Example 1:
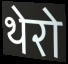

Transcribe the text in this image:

थेरो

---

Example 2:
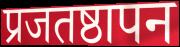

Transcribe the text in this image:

प्रजतष्ठापन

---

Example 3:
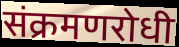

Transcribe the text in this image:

संक्रमणरोधी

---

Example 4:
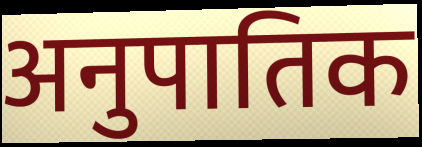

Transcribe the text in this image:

अनुपातिक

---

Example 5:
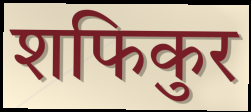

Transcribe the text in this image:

शफिकुर